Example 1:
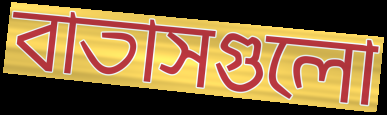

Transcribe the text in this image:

বাতাসগুলো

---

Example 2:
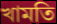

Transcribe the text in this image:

খামতি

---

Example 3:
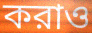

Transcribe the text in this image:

করাও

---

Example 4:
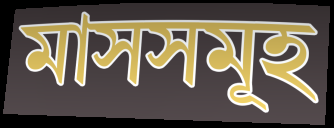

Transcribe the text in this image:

মাসসমূহ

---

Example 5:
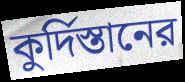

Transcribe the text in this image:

কুর্দিস্তানের